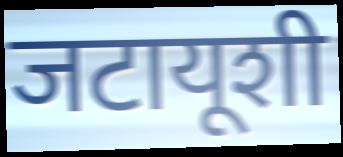
जटायूशी